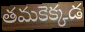
తమకెక్కడ